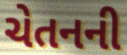
ચેતનની